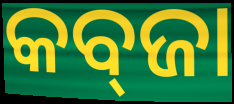
କବ୍‍ଜା